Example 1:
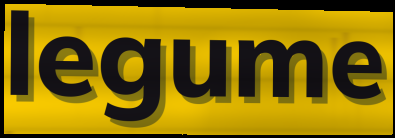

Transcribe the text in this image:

legume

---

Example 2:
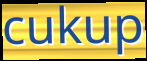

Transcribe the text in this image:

cukup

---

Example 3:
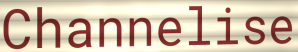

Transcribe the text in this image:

Channelise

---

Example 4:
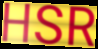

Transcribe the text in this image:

HSR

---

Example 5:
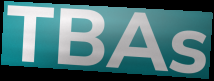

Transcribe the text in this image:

TBAs